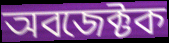
অবজেক্টক